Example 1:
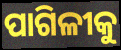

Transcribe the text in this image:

ପାଗିଳୀକୁ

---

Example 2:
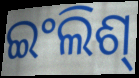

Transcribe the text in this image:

ଇଂଲିଶ୍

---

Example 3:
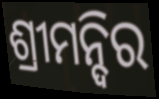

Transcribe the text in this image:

ଶ୍ରୀମନ୍ଦିର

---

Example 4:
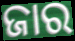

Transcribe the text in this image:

ଜାର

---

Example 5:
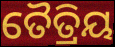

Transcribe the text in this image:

ତୈତ୍ରିୟ